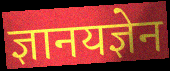
ज्ञानयज्ञेन